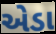
એડા